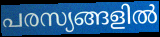
പരസ്യങ്ങളിൽ